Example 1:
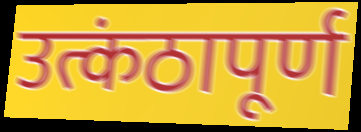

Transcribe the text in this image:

उत्कंठापूर्ण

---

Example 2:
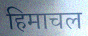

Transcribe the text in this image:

हिमाचल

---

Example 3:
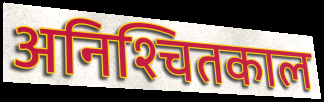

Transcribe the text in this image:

अनिश्चितकाल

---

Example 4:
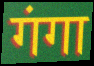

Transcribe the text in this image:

गंगा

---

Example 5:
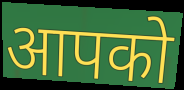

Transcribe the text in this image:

आपको